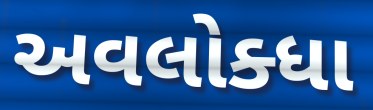
અવલોક્ધા